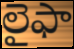
లైఫా